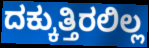
ದಕ್ಕುತ್ತಿರಲಿಲ್ಲ